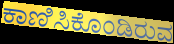
ಕಾಣಿಸಿಕೊಂಡಿರುವ